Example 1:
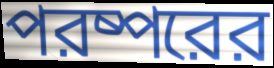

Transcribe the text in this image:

পরষ্পরের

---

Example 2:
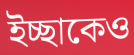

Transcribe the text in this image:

ইচ্ছাকেও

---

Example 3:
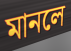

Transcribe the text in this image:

মানলে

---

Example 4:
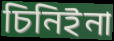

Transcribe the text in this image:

চিনিইনা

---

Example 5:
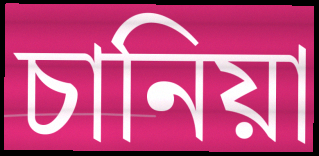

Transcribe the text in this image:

চানিয়া